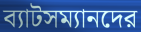
ব্যাটসম্যানদের